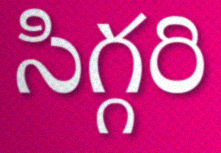
సిగ్గరి